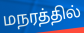
மநரத்தில்